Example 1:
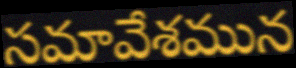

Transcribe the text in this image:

సమావేశమున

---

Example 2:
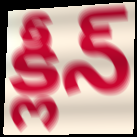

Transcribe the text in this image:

క్లీన్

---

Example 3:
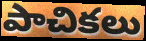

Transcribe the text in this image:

పాచికలు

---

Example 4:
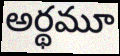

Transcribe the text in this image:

అర్థమూ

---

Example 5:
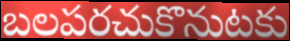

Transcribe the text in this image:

బలపరచుకొనుటకు